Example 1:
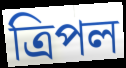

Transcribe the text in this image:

ত্রিপল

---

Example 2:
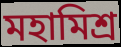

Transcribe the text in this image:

মহামিশ্র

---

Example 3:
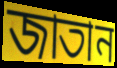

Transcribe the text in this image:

জাতান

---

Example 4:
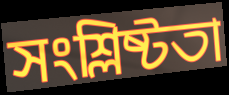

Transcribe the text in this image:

সংশ্লিষ্টতা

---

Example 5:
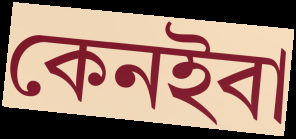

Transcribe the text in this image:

কেনইবা